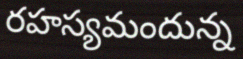
రహస్యమందున్న